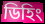
ডিহিং